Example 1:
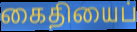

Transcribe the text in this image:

கைதியைப்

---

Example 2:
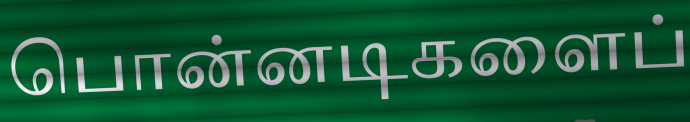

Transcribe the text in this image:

பொன்னடிகளைப்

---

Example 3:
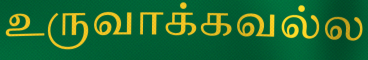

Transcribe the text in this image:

உருவாக்கவல்ல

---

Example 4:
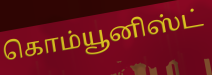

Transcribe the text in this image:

கொம்யூனிஸ்ட்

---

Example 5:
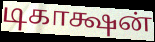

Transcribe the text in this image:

டிகாக்ஷன்